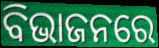
ବିଭାଜନରେ